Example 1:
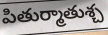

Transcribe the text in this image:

పితుర్మాతుశ్చ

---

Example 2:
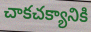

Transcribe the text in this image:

చాకచక్యానికి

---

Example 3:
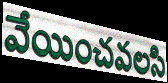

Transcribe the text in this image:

వేయించవలసి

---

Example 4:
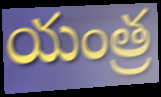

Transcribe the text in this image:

యంత్ర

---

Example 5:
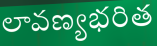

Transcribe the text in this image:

లావణ్యభరిత